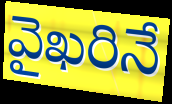
వైఖరినే